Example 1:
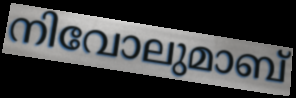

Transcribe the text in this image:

നിവോലുമാബ്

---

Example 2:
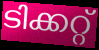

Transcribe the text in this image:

ടിക്കറ്റ്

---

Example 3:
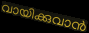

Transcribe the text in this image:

വായിക്കുവാൻ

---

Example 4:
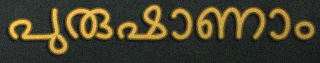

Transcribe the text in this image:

പുരുഷാണാം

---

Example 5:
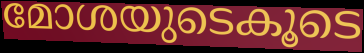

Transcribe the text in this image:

മോശയുടെകൂടെ